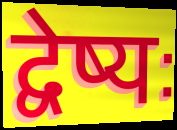
द्वेष्यः